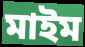
মাইম